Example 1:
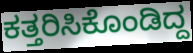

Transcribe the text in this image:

ಕತ್ತರಿಸಿಕೊಂಡಿದ್ದ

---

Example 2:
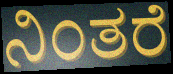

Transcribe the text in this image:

ನಿಂತರೆ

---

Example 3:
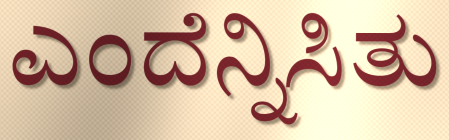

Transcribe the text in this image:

ಎಂದೆನ್ನಿಸಿತು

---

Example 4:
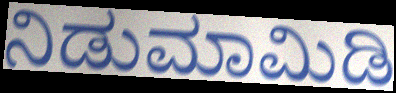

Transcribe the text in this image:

ನಿಡುಮಾಮಿಡಿ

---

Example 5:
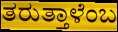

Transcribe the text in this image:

ತರುತ್ತಾಳೆಂಬ